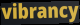
vibrancy